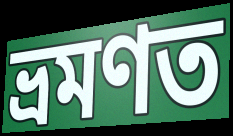
ভ্ৰমণত